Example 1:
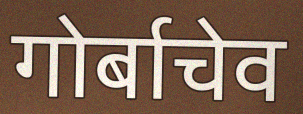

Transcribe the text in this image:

गोर्बाचेव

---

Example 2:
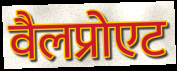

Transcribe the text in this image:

वैलप्रोएट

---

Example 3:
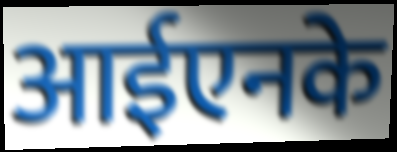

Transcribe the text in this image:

आईएनके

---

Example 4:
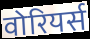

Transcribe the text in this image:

वोरियर्स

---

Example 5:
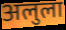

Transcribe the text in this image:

अलुला